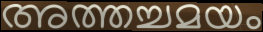
അത്തച്ചമയം